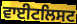
ਵਾਈਟਲਿਸਟ